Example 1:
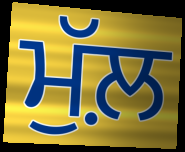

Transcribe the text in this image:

ਮੁੱਲ਼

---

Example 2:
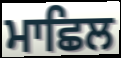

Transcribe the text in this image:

ਮਾਛਿਲ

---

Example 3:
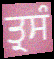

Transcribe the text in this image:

ਤ੍ਰਸੰ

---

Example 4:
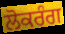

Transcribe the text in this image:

ਲੋਕਰੰਗ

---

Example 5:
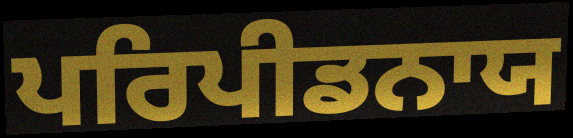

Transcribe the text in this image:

ਪਰਿਪੀਡਨਾਯ